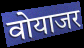
वोयाजर